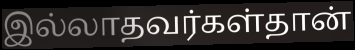
இல்லாதவர்கள்தான்